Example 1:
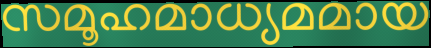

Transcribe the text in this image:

സമൂഹമാധ്യമമായ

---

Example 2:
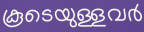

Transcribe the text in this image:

കൂടെയുള്ളവർ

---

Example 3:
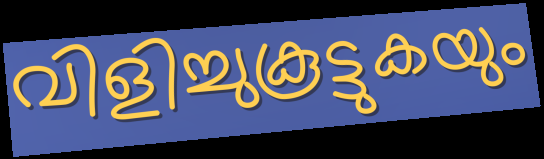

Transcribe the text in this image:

വിളിച്ചുകൂട്ടുകയും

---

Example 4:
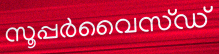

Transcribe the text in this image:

സൂപ്പർവൈസ്ഡ്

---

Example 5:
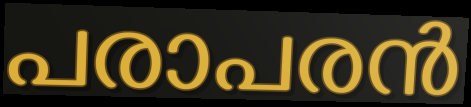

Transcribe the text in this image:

പരാപരൻ